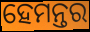
ହେମନ୍ତର